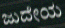
ಜುದೇಯ